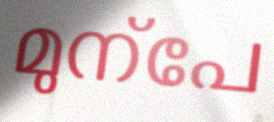
മുന്പേ